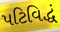
પટિવિદ્ધં